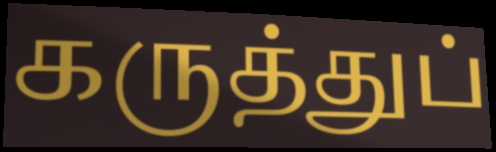
கருத்துப்